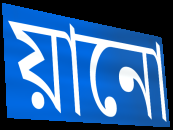
য়ানো